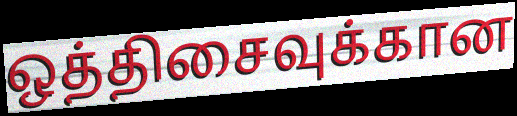
ஒத்திசைவுக்கான